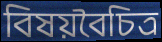
বিষয়বৈচিত্র